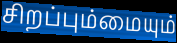
சிறப்பும்மையும்